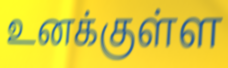
உனக்குள்ள